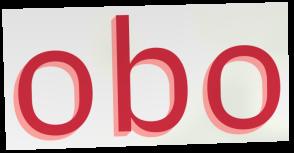
obo